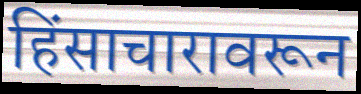
हिंसाचारावरून